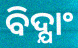
ବିଦ୍ଯାଂ